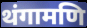
थंगामणि